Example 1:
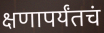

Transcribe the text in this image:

क्षणापर्यंतचं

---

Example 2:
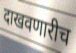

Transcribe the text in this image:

दाखवणारीच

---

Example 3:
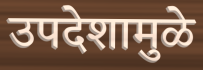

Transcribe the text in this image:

उपदेशामुळे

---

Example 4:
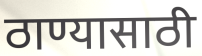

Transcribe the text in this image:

ठाण्यासाठी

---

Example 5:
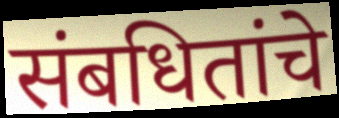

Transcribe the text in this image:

संबधितांचे